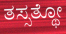
ತಸ್ಸತ್ಥೋ